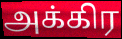
அக்கிர